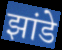
झांडे